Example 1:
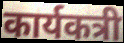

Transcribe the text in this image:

कार्यकत्री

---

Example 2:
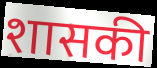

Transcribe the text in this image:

शासकी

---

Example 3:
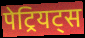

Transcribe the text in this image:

पेट्रियट्स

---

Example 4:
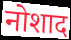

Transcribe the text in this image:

नोशाद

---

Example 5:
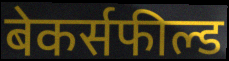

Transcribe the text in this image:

बेकर्सफील्ड